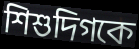
শিশুদিগকে